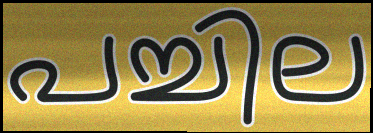
പച്ചില